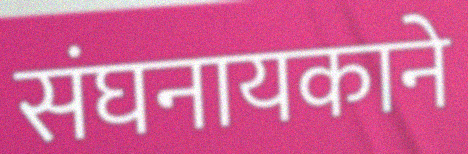
संघनायकाने